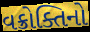
વક્રોક્તિનો